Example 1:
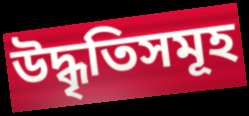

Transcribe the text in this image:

উদ্ধৃতিসমূহ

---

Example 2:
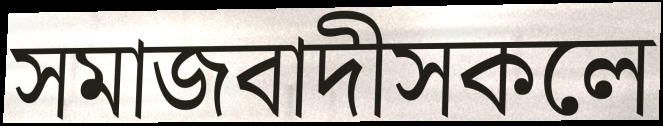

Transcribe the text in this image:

সমাজবাদীসকলে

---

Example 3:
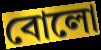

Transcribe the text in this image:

বোলো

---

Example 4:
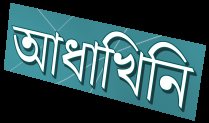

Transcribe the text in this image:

আধাখিনি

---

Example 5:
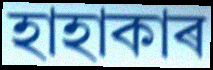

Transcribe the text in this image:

হাহাকাৰ